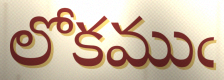
లోకముఁ